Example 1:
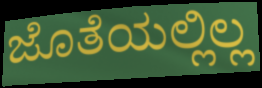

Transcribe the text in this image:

ಜೊತೆಯಲ್ಲಿಲ್ಲ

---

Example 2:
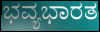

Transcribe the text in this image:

ಭವ್ಯಭಾರತ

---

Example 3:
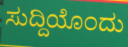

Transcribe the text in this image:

ಸುದ್ದಿಯೊಂದು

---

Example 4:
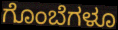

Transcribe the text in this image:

ಗೊಂಬೆಗಳೂ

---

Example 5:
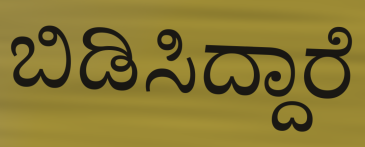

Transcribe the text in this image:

ಬಿಡಿಸಿದ್ದಾರೆ